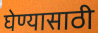
घेण्यासाठी